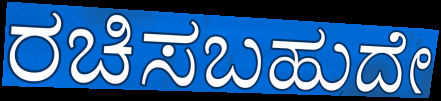
ರಚಿಸಬಹುದೇ